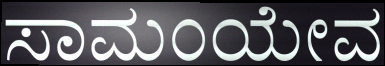
ಸಾಮಂಯೇವ